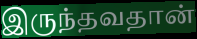
இருந்தவதான்